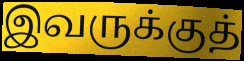
இவருக்குத்